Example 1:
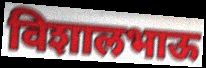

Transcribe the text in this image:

विशालभाऊ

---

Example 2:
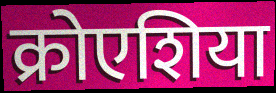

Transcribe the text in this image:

क्रोएशिया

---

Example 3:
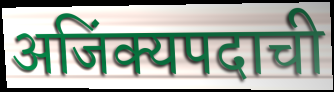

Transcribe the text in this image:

अजिंक्यपदाची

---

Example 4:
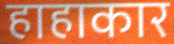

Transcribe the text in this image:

हाहाकार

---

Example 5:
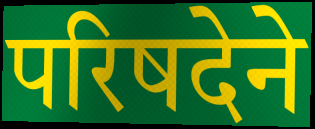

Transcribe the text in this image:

परिषदेने